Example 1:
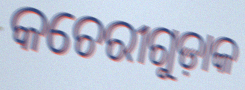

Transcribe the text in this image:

କଚେରୀଗୁଡ଼ାକ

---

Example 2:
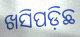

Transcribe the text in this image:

ଖସିପଡ଼ିଛ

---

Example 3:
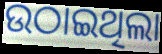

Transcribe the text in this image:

ଉଠାଇଥିଲା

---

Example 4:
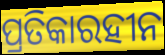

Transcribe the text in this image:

ପ୍ରତିକାରହୀନ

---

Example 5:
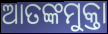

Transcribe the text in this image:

ଆତଙ୍କମୁକ୍ତା